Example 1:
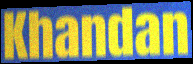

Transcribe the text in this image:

Khandan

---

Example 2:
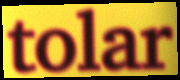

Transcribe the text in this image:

tolar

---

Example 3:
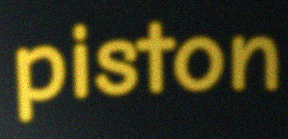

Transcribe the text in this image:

piston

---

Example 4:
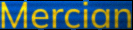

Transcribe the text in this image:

Mercian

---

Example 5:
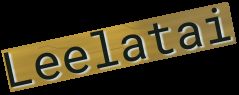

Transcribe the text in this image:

Leelatai